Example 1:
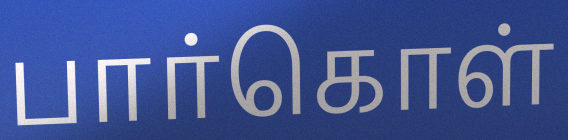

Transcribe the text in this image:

பார்கொள்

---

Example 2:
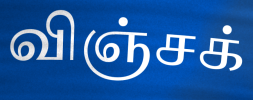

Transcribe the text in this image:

விஞ்சக்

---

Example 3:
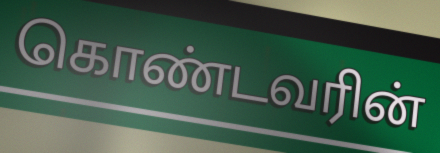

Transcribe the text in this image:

கொண்டவரின்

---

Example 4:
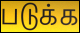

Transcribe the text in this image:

படுக்க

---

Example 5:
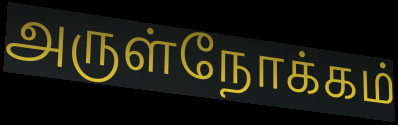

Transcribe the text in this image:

அருள்நோக்கம்